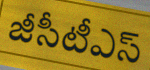
జీసీటీఎస్